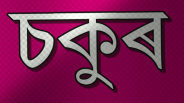
চকুৰ